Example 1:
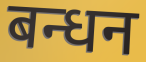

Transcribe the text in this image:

बन्धन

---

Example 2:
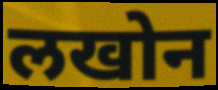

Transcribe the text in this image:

लखोन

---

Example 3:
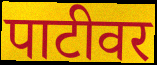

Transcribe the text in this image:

पाटीवर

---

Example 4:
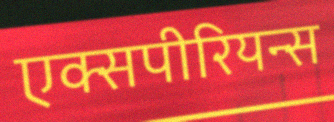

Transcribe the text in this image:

एक्सपीरियन्स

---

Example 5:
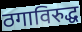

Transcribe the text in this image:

ठगाविरुद्ध